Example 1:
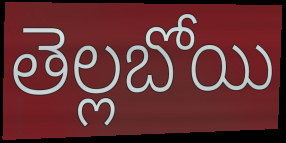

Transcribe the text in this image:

తెల్లబోయి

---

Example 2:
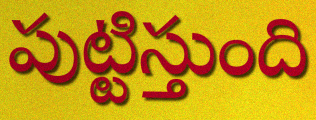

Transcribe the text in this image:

పుట్టిస్తుంది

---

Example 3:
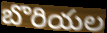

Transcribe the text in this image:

బొరియల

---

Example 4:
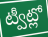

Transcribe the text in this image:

ట్వీట్లో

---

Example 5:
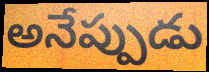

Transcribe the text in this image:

అనేప్పుడు